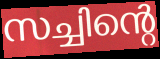
സച്ചിന്റെ